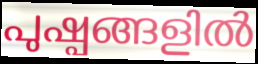
പുഷ്പങ്ങളിൽ